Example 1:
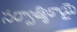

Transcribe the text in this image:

సర్వాత్మికాయై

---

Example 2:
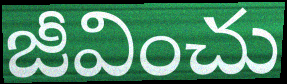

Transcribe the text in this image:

జీవించు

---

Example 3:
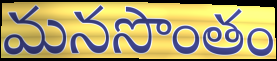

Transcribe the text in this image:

మనసొంతం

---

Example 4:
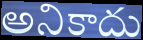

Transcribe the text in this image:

అనికాదు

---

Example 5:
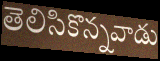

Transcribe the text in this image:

తెలిసికొన్నవాడు